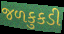
જળકુકડી